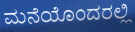
ಮನೆಯೊಂದರಲ್ಲಿ